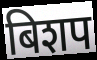
बिशप